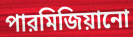
পারমিজিয়ানো